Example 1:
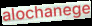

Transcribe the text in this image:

alochanege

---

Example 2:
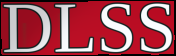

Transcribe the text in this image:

DLSS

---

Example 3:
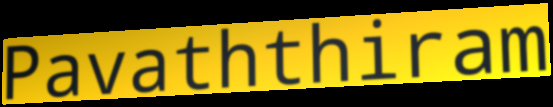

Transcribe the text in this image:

Pavaththiram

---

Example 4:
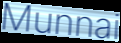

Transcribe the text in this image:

Munnai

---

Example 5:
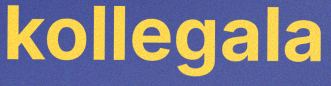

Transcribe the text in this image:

kollegala